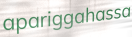
apariggahassa